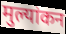
मुल्यांकन